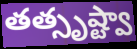
తత్సృష్ట్వా